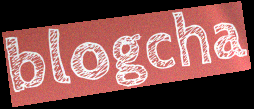
blogcha